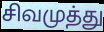
சிவமுத்து